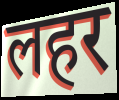
लहर